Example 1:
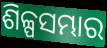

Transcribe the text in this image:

ଶିଳ୍ପସମ୍ଭାର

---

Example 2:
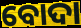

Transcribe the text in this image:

ବୋଦା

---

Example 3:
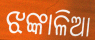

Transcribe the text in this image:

ଝଙ୍କାଳିଆ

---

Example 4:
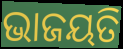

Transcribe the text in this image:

ଭାଜୟତି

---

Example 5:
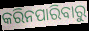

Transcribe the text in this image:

କରିନପାରିବାରୁ